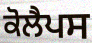
ਕੋਲੈਪਸ